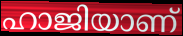
ഹാജിയാണ്